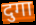
दुगा